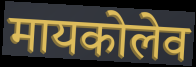
मायकोलेव